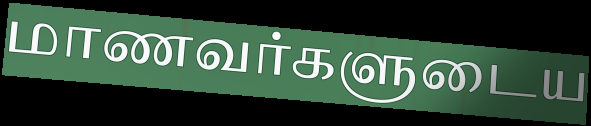
மாணவர்களுடைய